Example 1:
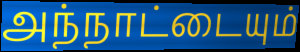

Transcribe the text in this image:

அந்நாட்டையும்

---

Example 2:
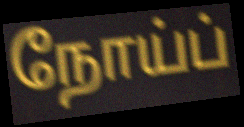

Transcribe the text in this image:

நோய்ப்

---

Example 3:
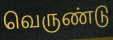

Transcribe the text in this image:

வெருண்டு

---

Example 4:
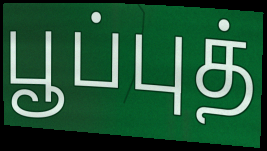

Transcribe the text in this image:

பூப்புத்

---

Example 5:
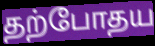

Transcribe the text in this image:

தற்போதய